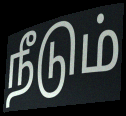
நீடும்